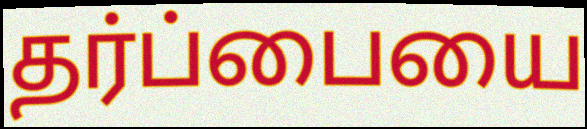
தர்ப்பையை